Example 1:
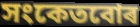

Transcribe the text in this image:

সংকেতবোৰ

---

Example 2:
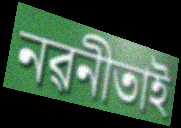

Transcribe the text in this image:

নৱনীতাই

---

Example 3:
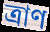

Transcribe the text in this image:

ত্ৰাণ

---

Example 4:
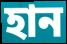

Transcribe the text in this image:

হান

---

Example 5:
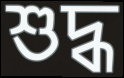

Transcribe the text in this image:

শুদ্ধ